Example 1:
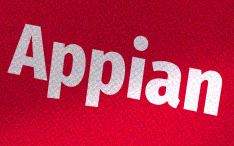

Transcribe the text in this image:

Appian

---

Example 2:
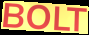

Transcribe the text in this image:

BOLT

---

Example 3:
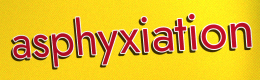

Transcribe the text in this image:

asphyxiation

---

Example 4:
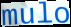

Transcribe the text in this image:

mulo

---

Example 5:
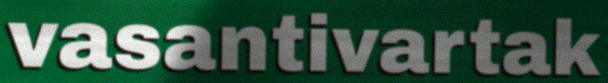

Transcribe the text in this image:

vasantivartak